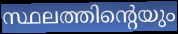
സ്ഥലത്തിന്റെയും